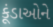
કૂંડાઓને